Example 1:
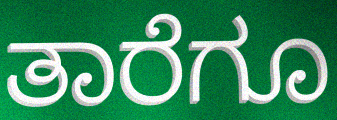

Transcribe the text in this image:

ತಾರೆಗೂ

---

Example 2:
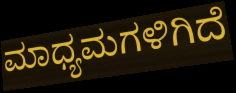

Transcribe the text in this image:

ಮಾಧ್ಯಮಗಳಿಗಿದೆ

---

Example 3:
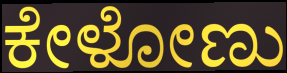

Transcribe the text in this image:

ಕೇಳೋಣು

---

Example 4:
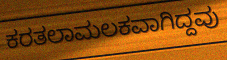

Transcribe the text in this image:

ಕರತಲಾಮಲಕವಾಗಿದ್ದವು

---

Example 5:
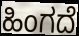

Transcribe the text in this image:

ಹಿಂಗದೆ